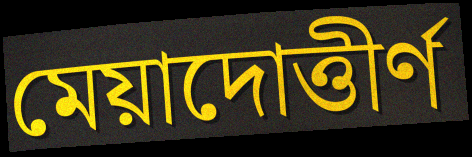
মেয়াদোত্তীর্ণ